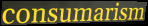
consumarism